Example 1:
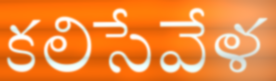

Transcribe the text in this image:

కలిసేవేళ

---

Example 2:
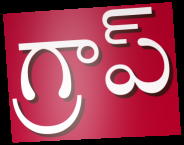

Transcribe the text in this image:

గ్రాప్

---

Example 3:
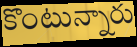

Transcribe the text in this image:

కొంటున్నారు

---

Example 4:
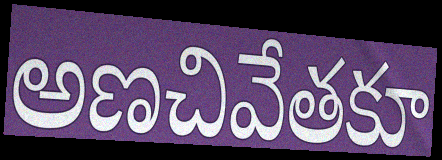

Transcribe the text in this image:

అణచివేతకూ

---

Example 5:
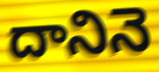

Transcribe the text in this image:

దానినె